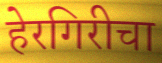
हेरगिरीचा